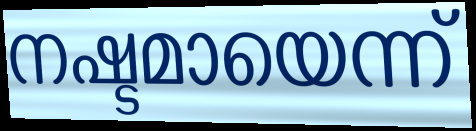
നഷ്ടമായെന്ന്